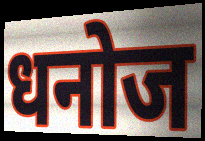
धनोज